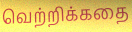
வெற்றிக்கதை